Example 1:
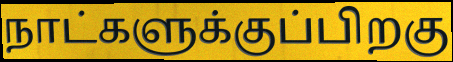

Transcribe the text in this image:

நாட்களுக்குப்பிறகு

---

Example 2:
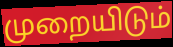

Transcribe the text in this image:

முறையிடும்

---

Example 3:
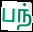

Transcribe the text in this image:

பந்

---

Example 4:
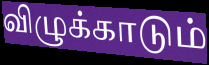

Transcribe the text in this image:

விழுக்காடும்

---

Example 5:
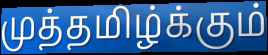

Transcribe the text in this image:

முத்தமிழ்க்கும்